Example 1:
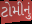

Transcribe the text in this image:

ટોમીનું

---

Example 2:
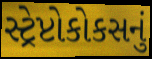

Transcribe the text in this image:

સ્ટ્રેપ્ટોકોકસનું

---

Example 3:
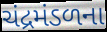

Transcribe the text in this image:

ચંદ્રમંડળના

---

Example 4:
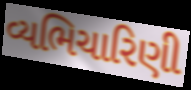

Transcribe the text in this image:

વ્યભિચારિણી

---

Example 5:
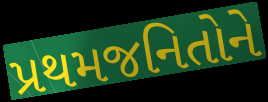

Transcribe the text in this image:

પ્રથમજનિતોને